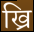
ख्रि